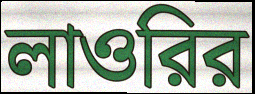
লাওরির